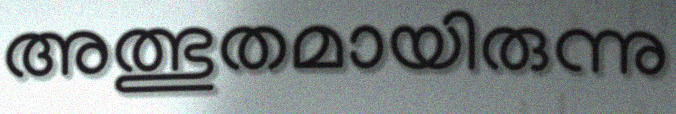
അത്ഭുതമായിരുന്നു